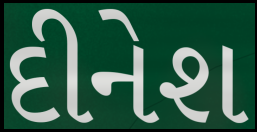
દીનેશ